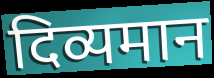
दिव्यमान